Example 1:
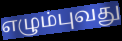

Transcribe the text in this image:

எழும்புவது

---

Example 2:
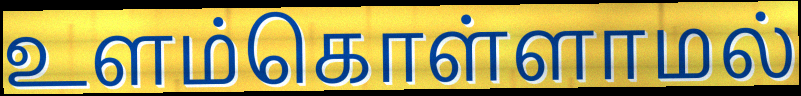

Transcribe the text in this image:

உளம்கொள்ளாமல்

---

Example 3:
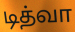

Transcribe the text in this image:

டித்வா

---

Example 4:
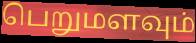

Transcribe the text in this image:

பெறுமளவும்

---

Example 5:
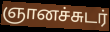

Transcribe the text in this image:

ஞானச்சுடர்